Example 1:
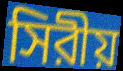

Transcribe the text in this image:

সিরীয়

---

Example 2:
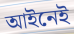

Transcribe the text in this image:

আইনেই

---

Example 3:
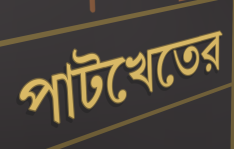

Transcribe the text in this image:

পাটখেতের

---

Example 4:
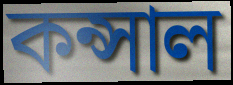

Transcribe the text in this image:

কন্সাল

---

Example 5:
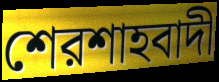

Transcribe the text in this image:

শেরশাহবাদী